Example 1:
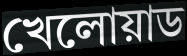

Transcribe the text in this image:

খেলোয়াড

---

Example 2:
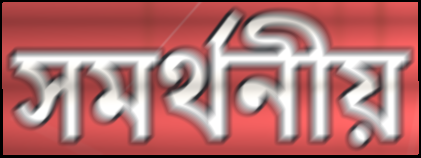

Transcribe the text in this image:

সমর্থনীয়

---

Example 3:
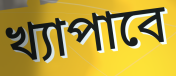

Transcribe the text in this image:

খ্যাপাবে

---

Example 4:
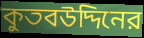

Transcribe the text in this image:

কুতবউদ্দিনের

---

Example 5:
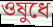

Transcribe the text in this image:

ওষুধে